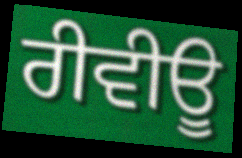
ਰੀਵੀਊ